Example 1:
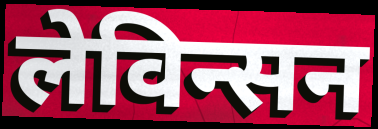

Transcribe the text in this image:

लेविन्सन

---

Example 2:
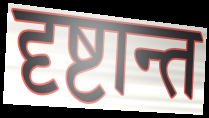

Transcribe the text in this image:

दृष्टान्त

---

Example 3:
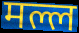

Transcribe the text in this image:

मल्ल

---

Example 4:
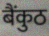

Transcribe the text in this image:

बैंकुठ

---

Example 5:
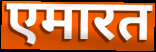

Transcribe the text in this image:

एमारत